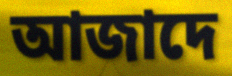
আজাদে